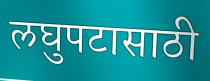
लघुपटासाठी